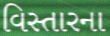
વિસ્તારના